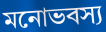
মনোভবস্য